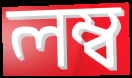
লম্ব